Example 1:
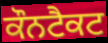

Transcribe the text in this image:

ਕੌਨਟੈਕਟ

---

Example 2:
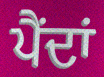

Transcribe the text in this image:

ਪੈਂਦਾਂ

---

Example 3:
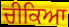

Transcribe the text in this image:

ਚੀਕਿਆ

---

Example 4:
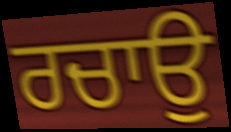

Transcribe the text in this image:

ਰਚਾਉ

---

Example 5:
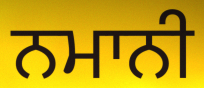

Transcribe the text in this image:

ਨਮਾਨੀ